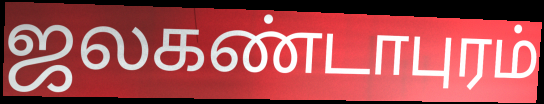
ஜலகண்டாபுரம்